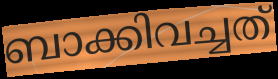
ബാക്കിവച്ചത്